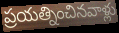
ప్రయత్నించినవాళ్లు